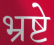
भ्रष्टे